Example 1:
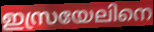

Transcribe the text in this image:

ഇസ്രയേലിനെ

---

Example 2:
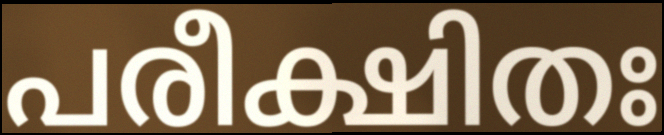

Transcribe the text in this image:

പരീക്ഷിതഃ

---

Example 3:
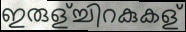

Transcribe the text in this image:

ഇരുള്ച്ചിറകുകള്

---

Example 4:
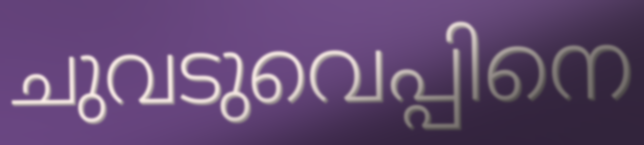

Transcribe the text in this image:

ചുവടുവെപ്പിനെ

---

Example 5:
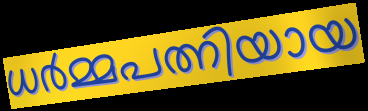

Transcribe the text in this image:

ധർമ്മപത്നിയായ